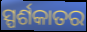
ସ୍ପର୍ଶକାତର